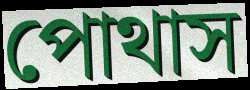
পোথাস